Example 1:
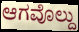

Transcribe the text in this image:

ಆಗವೊಲ್ದು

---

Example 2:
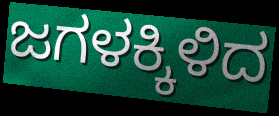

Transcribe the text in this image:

ಜಗಳಕ್ಕಿಳಿದ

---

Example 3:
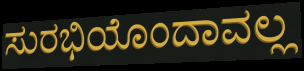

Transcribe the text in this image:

ಸುರಭಿಯೊಂದಾವಲ್ಲ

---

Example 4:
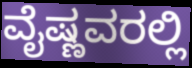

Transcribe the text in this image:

ವೈಷ್ಣವರಲ್ಲಿ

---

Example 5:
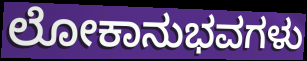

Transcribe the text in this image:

ಲೋಕಾನುಭವಗಳು